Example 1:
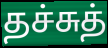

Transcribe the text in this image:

தச்சுத்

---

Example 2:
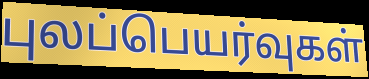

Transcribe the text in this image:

புலப்பெயர்வுகள்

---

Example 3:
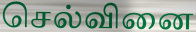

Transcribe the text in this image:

செல்வினை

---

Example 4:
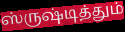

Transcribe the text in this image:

ஸ்ருஷ்டித்தும்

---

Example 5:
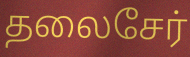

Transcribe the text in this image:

தலைசேர்